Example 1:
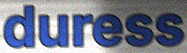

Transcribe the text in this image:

duress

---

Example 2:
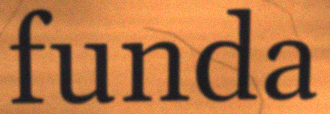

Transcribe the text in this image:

funda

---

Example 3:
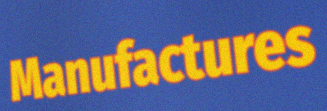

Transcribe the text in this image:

Manufactures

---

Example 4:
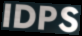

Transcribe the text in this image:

IDPS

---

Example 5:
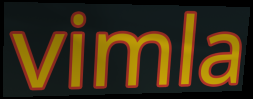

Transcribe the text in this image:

vimla